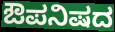
ಔಪನಿಷದ